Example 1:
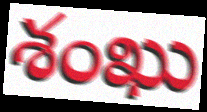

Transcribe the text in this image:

శంఖు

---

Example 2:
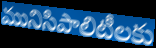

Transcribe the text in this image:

మునిసిపాలిటీలకు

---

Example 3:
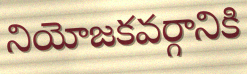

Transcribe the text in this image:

నియోజకవర్గానికి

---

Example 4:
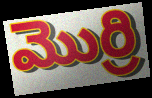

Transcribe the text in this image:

మొర్రి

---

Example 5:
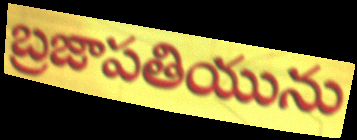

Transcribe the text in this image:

బ్రజాపతియును